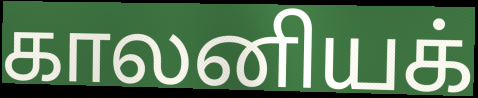
காலனியக்